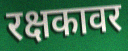
रक्षकावर